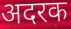
अदरक